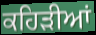
ਕਹਿੜੀਆਂ